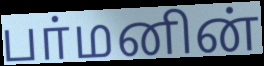
பர்மனின்